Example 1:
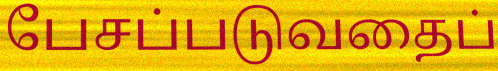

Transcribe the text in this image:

பேசப்படுவதைப்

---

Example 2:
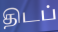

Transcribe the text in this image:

திடப்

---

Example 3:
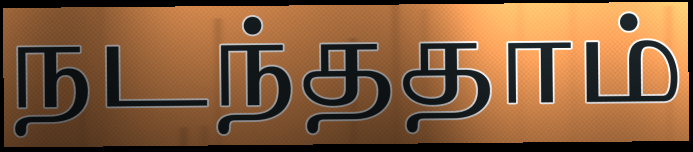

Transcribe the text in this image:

நடந்ததாம்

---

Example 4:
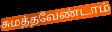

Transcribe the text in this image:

சுமத்தவேண்டாம்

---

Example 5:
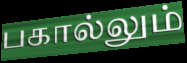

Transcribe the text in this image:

பகால்லும்